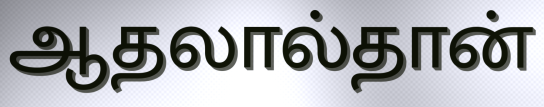
ஆதலால்தான்